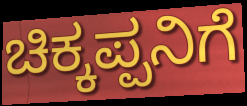
ಚಿಕ್ಕಪ್ಪನಿಗೆ